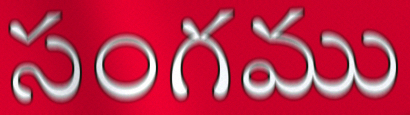
సంగము